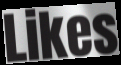
Likes